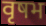
वृषभ